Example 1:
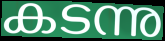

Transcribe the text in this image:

കടന്നു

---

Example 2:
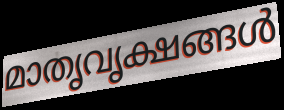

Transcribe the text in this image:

മാതൃവൃക്ഷങ്ങൾ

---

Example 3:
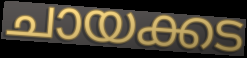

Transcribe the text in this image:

ചായക്കട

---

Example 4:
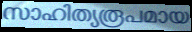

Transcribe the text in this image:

സാഹിത്യരൂപമായ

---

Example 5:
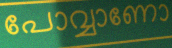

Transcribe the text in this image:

പോവ്വാണോ